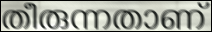
തീരുന്നതാണ്